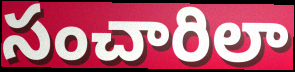
సంచారిలా